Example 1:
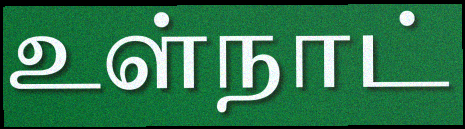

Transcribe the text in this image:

உள்நாட்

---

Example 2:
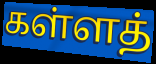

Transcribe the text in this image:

கள்ளத்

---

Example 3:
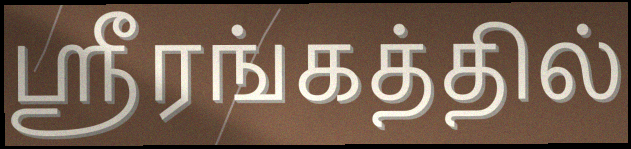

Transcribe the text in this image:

ஸ்ரீரங்கத்தில்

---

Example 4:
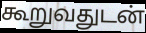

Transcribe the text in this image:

கூறுவதுடன்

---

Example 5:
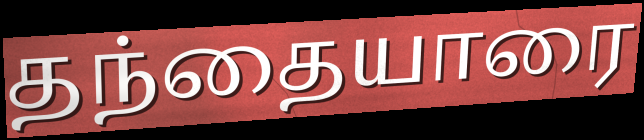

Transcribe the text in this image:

தந்தையாரை